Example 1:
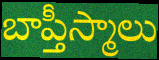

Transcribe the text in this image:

బాప్తీస్మాలు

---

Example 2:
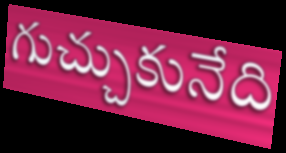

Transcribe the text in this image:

గుచ్చుకునేది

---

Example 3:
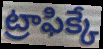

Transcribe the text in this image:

ట్రాఫిక్కే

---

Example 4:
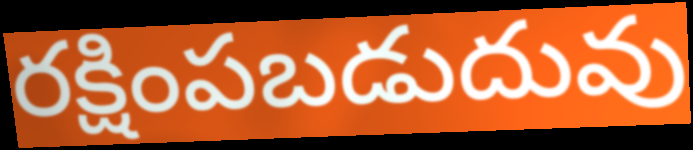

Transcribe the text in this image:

రక్షింపబడుదువు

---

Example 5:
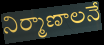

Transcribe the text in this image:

నిర్మాణాలనే